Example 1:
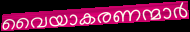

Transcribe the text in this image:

വൈയാകരണന്മാർ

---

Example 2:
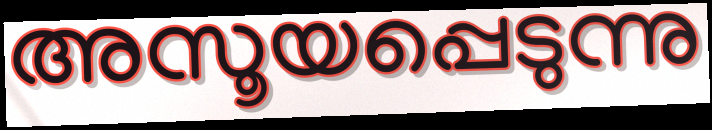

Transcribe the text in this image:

അസൂയപ്പെടുന്നു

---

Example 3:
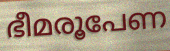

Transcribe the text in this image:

ഭീമരൂപേണ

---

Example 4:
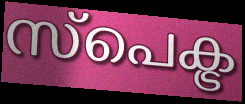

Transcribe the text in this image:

സ്‌പെക്ട്ര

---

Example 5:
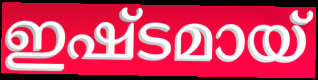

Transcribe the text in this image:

ഇഷ്ടമായ്